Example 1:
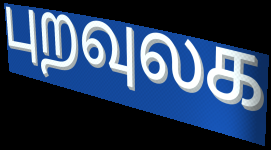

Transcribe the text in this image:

புறவுலக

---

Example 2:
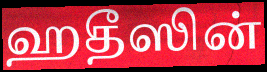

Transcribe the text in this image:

ஹதீஸின்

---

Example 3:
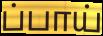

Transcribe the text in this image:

ப்பாய்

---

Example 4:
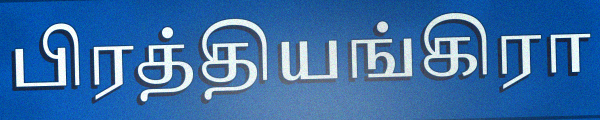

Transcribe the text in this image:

பிரத்தியங்கிரா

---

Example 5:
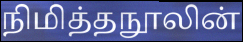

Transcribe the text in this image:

நிமித்தநூலின்